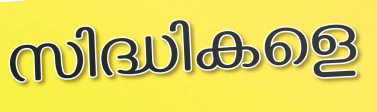
സിദ്ധികളെ